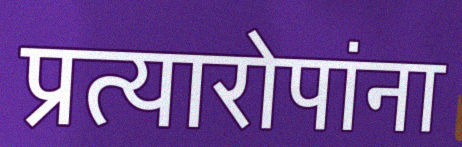
प्रत्यारोपांना